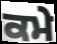
ਕਮੇ